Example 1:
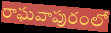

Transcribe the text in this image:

రాఘవాపురంలో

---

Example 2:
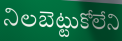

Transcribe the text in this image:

నిలబెట్టుకోలేని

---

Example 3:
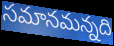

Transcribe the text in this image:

సమానమన్నది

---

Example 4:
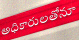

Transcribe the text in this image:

అధికారులతోనూ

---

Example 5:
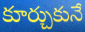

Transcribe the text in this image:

కూర్చుకునే